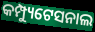
କମ୍ପ୍ୟୁଟେସନାଲ